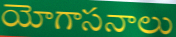
యోగాసనాలు